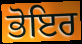
ਭੋਇਰ